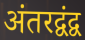
अंतरद्वंद्व